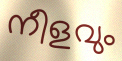
നീളവും